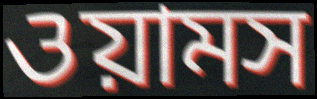
ওয়ামস